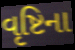
વૃષ્ટિના